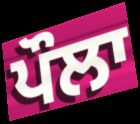
ਪੌਲਾ